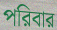
পরিবার